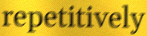
repetitively